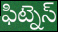
ఫిట్నెస్